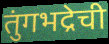
तुंगभद्रेची